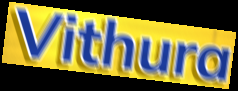
Vithura